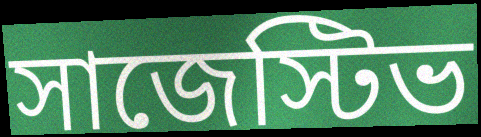
সাজেস্টিভ